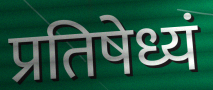
प्रतिषेध्यं